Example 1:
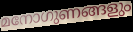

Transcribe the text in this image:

മനോഗുണങ്ങളും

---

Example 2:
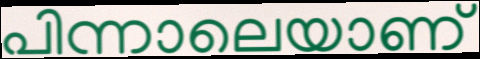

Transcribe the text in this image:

പിന്നാലെയാണ്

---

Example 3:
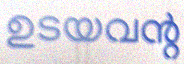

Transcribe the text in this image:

ഉടയവന്റ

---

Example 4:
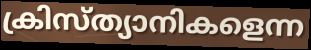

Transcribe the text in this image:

ക്രിസ്ത്യാനികളെന്ന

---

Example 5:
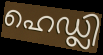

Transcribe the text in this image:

ഹെഡ്ലി